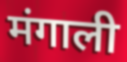
मंगाली